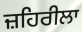
ਜ਼ਹਿਰੀਲਾ